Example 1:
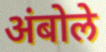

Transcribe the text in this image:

अंबोले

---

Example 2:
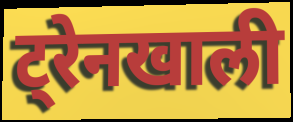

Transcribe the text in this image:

ट्रेनखाली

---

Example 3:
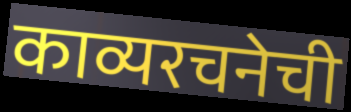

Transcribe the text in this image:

काव्यरचनेची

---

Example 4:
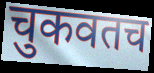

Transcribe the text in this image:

चुकवतच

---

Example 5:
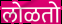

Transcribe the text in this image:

लोळतो